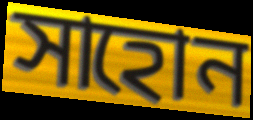
সাহোন